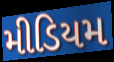
મીડિયમ